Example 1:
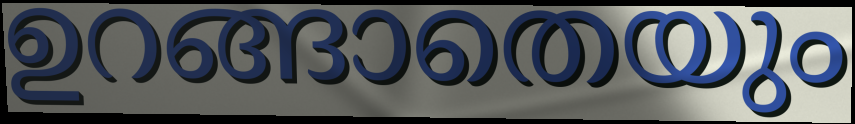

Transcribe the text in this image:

ഉറങ്ങാതെയും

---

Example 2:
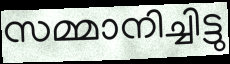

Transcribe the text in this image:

സമ്മാനിച്ചിട്ടു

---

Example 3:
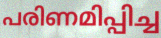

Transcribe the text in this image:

പരിണമിപ്പിച്ച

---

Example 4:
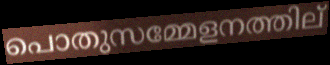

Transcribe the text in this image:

പൊതുസമ്മേളനത്തില്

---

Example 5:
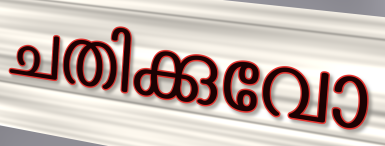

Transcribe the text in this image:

ചതിക്കുവോ